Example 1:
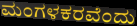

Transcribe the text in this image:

ಮಂಗಳಕರವೆಂದು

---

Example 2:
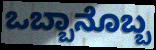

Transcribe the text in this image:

ಒಬ್ಬಾನೊಬ್ಬ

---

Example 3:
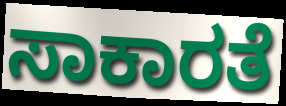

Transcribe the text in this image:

ಸಾಕಾರತೆ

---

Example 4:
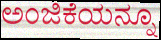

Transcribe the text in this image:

ಅಂಜಿಕೆಯನ್ನೂ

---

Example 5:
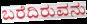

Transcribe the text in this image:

ಬರೆದಿರುವನು